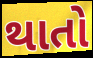
થાતો